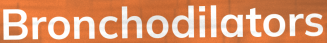
Bronchodilators